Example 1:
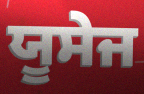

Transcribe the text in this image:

ਯੂਸੇਜ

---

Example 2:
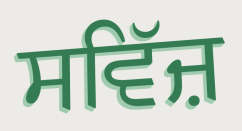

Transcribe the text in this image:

ਸਵਿੱਜ਼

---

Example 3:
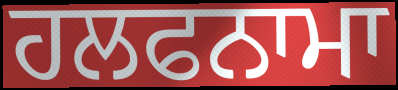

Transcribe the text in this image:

ਹਲਫਨਾਮਾ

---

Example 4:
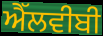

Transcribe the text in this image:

ਐੱਲਵੀਬੀ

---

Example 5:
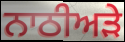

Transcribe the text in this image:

ਨਾਠੀਅੜੇ